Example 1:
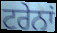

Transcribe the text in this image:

ਟਰੇਨਾਂ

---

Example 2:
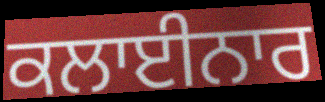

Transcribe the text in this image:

ਕਲਾਈਨਾਰ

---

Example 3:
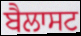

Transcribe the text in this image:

ਬੈਲਾਸਟ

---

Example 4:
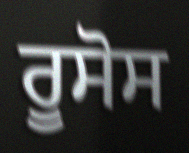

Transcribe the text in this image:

ਰੂਸੋਸ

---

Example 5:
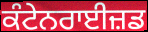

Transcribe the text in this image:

ਕੰਟੇਨਰਾਈਜ਼ਡ